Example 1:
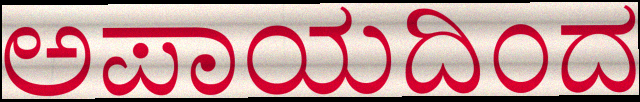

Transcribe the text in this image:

ಅಪಾಯದಿಂದ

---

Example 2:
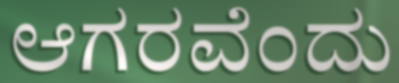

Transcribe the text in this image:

ಆಗರವೆಂದು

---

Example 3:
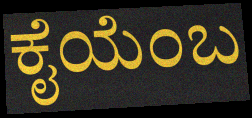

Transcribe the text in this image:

ಕೈಯೆಂಬ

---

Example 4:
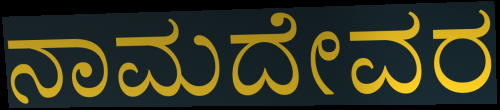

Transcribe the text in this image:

ನಾಮದೇವರ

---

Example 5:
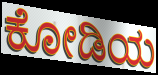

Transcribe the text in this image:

ಕೋಡಿಯ